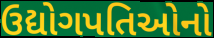
ઉદ્યોગપતિઓનો